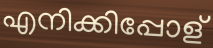
എനിക്കിപ്പോള്